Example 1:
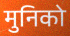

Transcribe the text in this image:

मुनिको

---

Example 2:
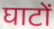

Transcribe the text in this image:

घाटों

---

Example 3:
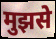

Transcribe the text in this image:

मुझसे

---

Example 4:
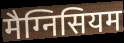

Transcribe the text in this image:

मैग्निसियम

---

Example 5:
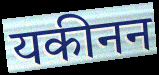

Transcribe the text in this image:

यकीनन